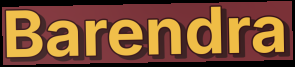
Barendra